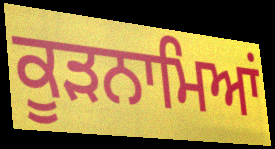
ਕੂੜਨਾਮਿਆਂ